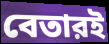
বেতারই